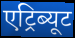
एट्रिब्यूट